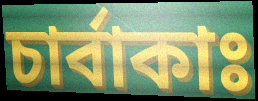
চার্বাকাঃ